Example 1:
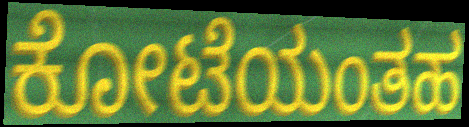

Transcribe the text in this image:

ಕೋಟೆಯಂತಹ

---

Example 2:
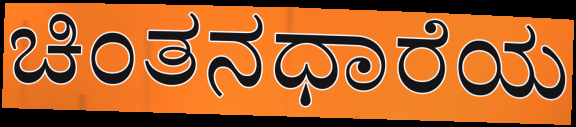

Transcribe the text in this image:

ಚಿಂತನಧಾರೆಯ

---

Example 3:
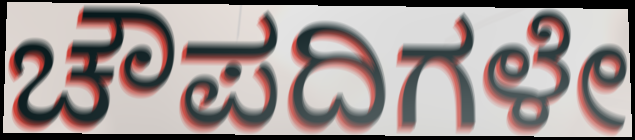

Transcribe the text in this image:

ಚೌಪದಿಗಳೇ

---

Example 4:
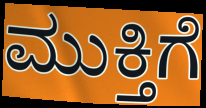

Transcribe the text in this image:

ಮುಕ್ತಿಗೆ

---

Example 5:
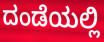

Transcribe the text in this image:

ದಂಡೆಯಲ್ಲಿ